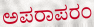
ಅಪರಾಪರಂ